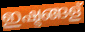
ഇഷ്ടങ്ങള്